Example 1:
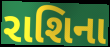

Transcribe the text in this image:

રાશિના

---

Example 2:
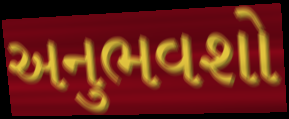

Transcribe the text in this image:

અનુભવશો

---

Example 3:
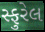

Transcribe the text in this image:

સ્ફુરેલ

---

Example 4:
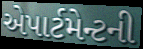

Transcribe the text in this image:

એપાર્ટમેન્ટની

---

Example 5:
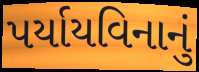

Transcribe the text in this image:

પર્યાયવિનાનું